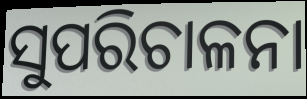
ସୁପରିଚାଳନା